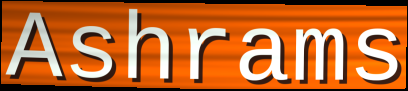
Ashrams